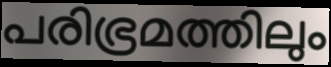
പരിഭ്രമത്തിലും